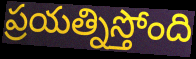
ప్రయత్నిస్తోంది